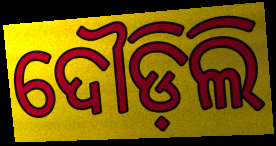
ଦୌଡ଼ିଲି